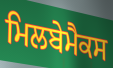
ਮਿਲਬੇਮੈਕਸ